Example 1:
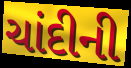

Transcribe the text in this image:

ચાંદીની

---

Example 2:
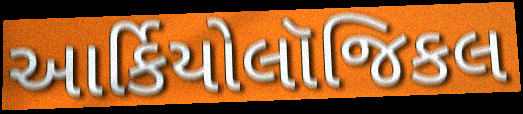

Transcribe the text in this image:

આર્કિયોલૉજિકલ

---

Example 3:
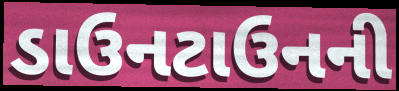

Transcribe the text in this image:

ડાઉનટાઉનની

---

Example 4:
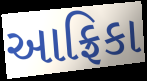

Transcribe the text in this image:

આફ્રિકા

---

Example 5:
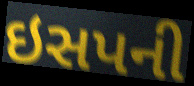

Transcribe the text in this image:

ઇસપની